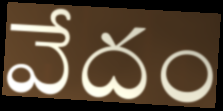
వేదం